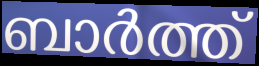
ബാർത്ത്